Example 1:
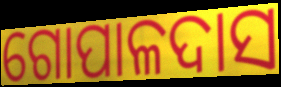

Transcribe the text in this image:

ଗୋପାଳଦାସ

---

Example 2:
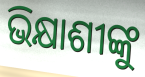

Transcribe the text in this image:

ଭିକ୍ଷାଶୀଙ୍କୁ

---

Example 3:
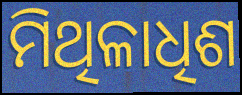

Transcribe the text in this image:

ମିଥିଳାଧିଶ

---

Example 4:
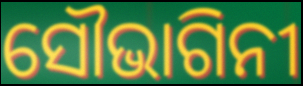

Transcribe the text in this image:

ସୌଭାଗିନୀ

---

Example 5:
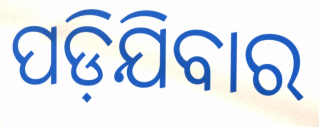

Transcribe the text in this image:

ପଡ଼ିଯିବାର